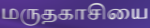
மருதகாசியை